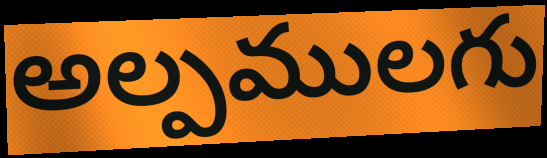
అల్పములగు